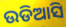
ଉଡିଆସି